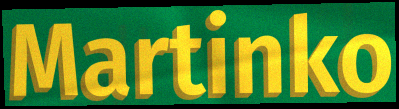
Martinko